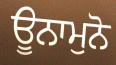
ਊਨਾਮੁਨੋ